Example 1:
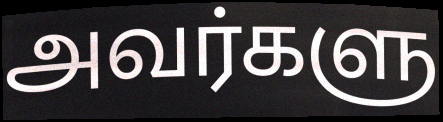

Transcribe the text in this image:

அவர்களு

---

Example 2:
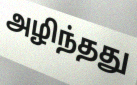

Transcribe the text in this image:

அழிந்தது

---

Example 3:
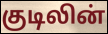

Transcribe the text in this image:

குடிலின்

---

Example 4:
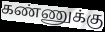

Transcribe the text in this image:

கண்ணுக்கு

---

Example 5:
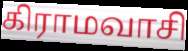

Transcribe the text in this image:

கிராமவாசி